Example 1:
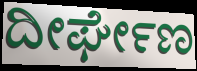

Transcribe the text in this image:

ದೀರ್ಘೇಣ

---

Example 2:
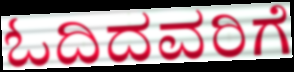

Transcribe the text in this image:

ಓದಿದವರಿಗೆ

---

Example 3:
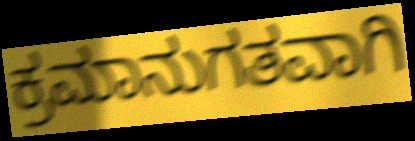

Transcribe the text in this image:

ಕ್ರಮಾನುಗತವಾಗಿ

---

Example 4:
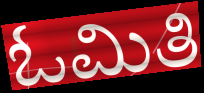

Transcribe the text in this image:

ಓಮಿತಿ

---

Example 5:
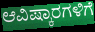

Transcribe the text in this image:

ಆವಿಷ್ಕಾರಗಳಿಗೆ